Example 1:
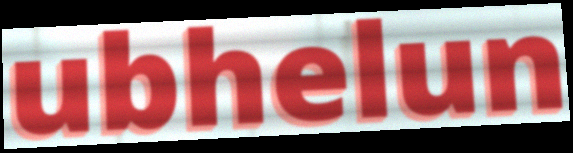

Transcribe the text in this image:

ubhelun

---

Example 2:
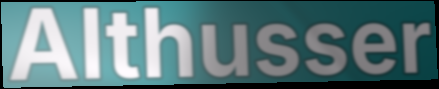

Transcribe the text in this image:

Althusser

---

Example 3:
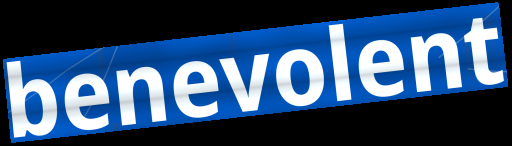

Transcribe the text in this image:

benevolent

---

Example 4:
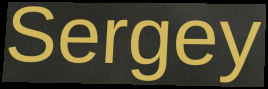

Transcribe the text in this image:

Sergey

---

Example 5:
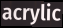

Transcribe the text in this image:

acrylic